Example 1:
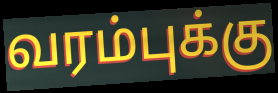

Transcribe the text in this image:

வரம்புக்கு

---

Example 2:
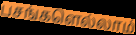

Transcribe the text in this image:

பசங்களெல்லாம்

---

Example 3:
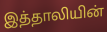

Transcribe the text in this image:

இத்தாலியின்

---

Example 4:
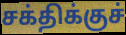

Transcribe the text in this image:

சக்திக்குச்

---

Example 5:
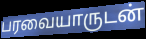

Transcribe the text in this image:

பரவையாருடன்